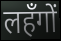
लहँगों